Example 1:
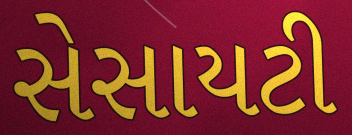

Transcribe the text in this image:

સેસાયટી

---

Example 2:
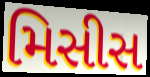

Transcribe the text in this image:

મિસીસ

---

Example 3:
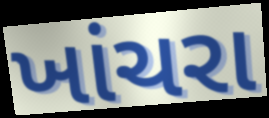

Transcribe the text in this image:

ખાંચરા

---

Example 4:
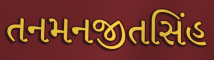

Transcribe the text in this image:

તનમનજીતસિંહ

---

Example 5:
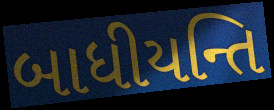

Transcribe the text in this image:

બાધીયન્તિ